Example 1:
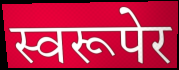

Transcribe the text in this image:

स्वरूपेर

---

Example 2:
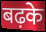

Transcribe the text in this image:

बढ़के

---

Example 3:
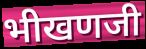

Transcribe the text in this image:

भीखणजी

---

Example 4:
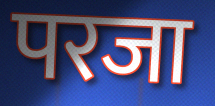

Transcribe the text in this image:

परजा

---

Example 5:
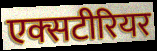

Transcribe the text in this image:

एक्‍सटीरियर